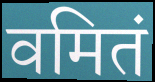
वमितं